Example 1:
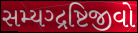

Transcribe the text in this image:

સમ્યગ્દ્રષ્ટિજીવો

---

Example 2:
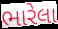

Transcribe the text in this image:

ભારેલા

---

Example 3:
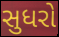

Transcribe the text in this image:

સુધરો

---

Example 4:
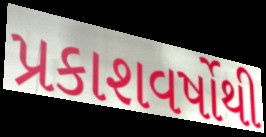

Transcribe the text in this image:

પ્રકાશવર્ષોથી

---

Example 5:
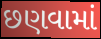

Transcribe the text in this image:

છણવામાં